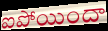
ఐపోయిందా